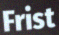
Frist